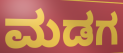
ಮಡಗ